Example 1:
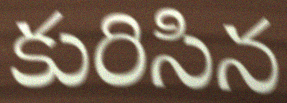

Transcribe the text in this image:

కురిసిన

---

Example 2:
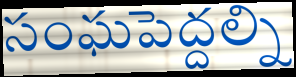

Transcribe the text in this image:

సంఘపెద్దల్ని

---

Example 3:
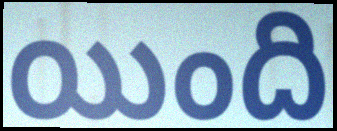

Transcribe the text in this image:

యింది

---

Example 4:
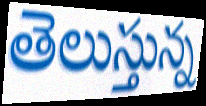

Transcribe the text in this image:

తెలుస్తున్న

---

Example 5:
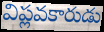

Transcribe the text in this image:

విప్లవకారుడు